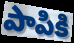
పాపికి